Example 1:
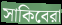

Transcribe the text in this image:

সাকিবেরা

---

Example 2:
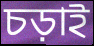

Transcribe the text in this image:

চড়াই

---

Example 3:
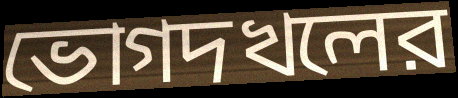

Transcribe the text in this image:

ভোগদখলের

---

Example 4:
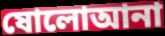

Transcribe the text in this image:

ষোলোআনা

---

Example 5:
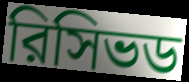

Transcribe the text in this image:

রিসিভড